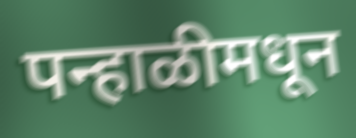
पन्हाळीमधून